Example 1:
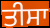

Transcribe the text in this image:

ਤੀਸਾ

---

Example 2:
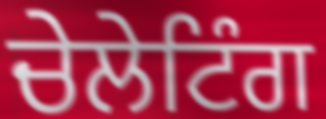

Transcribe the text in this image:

ਚੇਲੇਟਿੰਗ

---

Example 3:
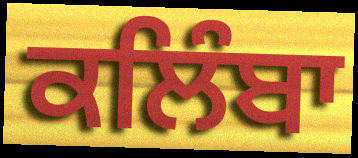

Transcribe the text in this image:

ਕਲਿੰਬਾ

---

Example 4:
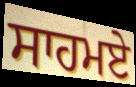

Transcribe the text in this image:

ਸਾਹਮਏ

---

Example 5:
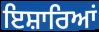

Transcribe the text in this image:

ਇਸ਼ਾਰਿਆਂ